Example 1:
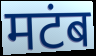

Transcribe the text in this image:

मटंब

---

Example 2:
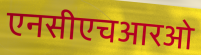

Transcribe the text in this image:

एनसीएचआरओ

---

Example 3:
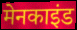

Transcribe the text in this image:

मेनकाइंड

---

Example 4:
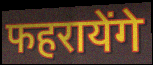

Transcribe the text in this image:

फहरायेंगे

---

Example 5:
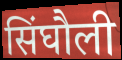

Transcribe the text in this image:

सिंघौली